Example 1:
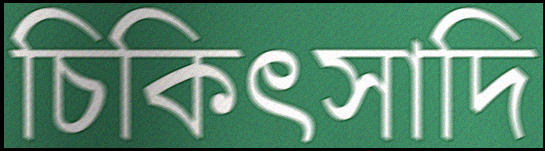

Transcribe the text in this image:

চিকিৎসাদি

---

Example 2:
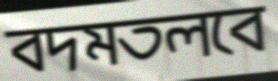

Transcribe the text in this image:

বদমতলবে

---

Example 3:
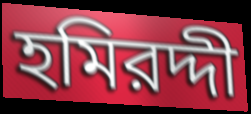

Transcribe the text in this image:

হমিরদ্দী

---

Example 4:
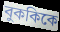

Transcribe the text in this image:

বুককিকে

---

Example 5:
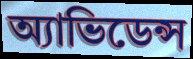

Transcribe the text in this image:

অ্যাভিডেন্স